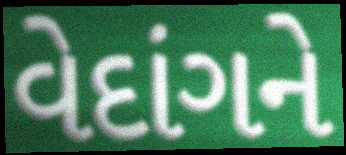
વેદાંગને